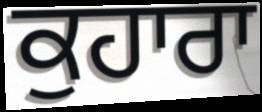
ਕੁਹਾਰਾ